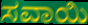
ಸವಾಯಿ